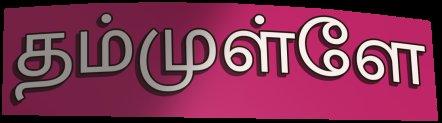
தம்முள்ளே